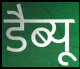
डैब्यू